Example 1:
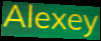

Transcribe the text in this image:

Alexey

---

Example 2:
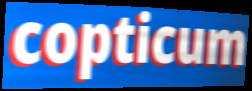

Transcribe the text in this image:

copticum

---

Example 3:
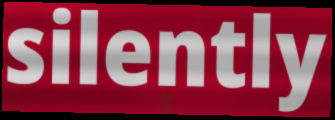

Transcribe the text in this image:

silently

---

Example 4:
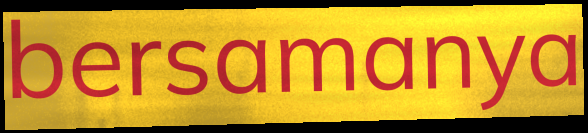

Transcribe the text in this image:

bersamanya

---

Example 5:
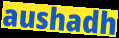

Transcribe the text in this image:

aushadh